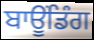
ਬਾਊਂਡਿੰਗ